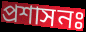
প্ৰশাসনঃ